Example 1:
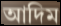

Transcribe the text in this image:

আদিম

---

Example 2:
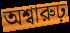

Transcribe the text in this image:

অশ্বারুঢ়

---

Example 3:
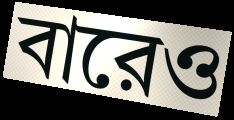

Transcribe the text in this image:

বারেও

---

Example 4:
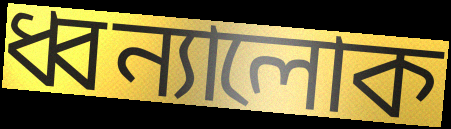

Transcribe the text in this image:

ধ্বন্যালোক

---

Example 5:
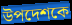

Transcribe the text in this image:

উপদেশকে